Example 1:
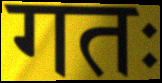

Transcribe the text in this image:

गतः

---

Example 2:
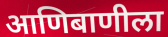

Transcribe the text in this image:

आणिबाणीला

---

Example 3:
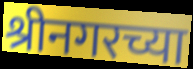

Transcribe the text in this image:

श्रीनगरच्या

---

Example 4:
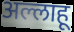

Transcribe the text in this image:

अल्लाहू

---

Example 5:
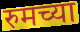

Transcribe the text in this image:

रुमच्या